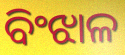
ବିଂଝାଳ